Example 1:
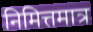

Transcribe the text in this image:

निमित्तमात्र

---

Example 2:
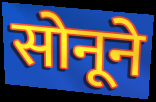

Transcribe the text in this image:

सोनूने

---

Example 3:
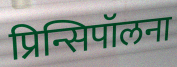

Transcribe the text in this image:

प्रिन्सिपॉलना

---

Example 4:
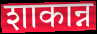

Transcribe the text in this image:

शाकान्न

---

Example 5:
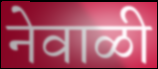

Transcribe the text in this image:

नेवाळी